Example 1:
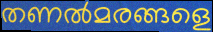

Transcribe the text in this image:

തണൽമരങ്ങളെ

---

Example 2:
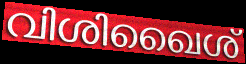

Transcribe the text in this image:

വിശിഖൈശ്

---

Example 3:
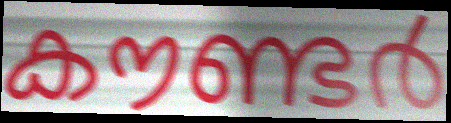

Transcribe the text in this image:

കൗണ്ടർ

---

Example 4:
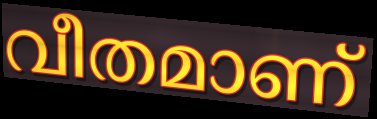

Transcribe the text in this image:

വീതമാണ്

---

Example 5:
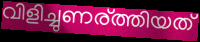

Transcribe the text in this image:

വിളിച്ചുണര്ത്തിയത്